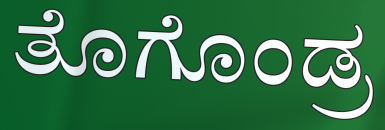
ತೊಗೊಂಡ್ರ